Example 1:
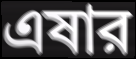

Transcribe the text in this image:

এষার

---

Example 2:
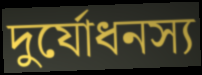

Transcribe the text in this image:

দুর্যোধনস্য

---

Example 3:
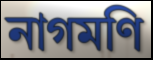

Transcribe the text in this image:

নাগমণি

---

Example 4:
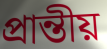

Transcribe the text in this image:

প্রান্তীয়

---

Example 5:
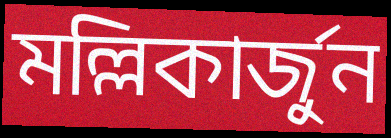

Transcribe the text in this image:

মল্লিকার্জুন